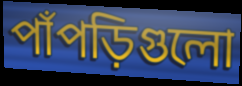
পাঁপড়িগুলো